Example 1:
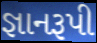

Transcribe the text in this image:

જ્ઞાનરૂપી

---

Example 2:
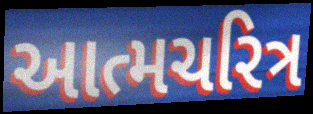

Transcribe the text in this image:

આત્મચરિત્ર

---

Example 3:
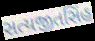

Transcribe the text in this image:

સત્યજીતસિંહ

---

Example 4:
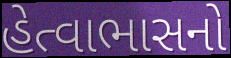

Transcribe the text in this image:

હેત્વાભાસનો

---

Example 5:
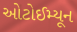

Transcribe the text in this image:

ઓટોઈમ્યૂન